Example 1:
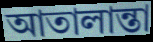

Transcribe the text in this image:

আতালান্তা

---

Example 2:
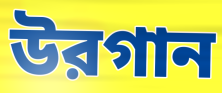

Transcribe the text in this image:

উরগান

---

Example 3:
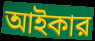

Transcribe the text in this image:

আইকার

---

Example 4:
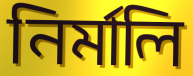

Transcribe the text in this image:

নির্মালি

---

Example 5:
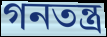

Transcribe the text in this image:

গনতন্ত্র